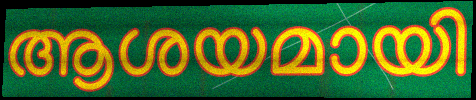
ആശയമായി